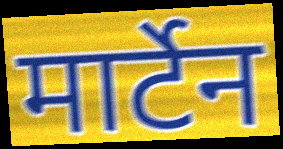
मार्टेन